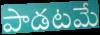
పాడటమే